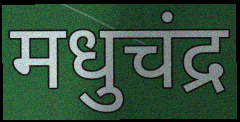
मधुचंद्र